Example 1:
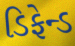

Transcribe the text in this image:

ડિફેન્ડ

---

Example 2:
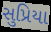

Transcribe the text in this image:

સુપ્રિયા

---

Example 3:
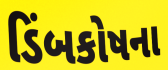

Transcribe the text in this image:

ડિંબકોષના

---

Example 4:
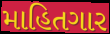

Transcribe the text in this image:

માહિતગાર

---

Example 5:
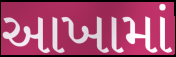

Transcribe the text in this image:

આખામાં